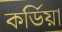
কর্ডিয়া